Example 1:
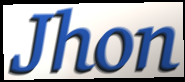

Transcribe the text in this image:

Jhon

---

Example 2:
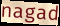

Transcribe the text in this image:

nagad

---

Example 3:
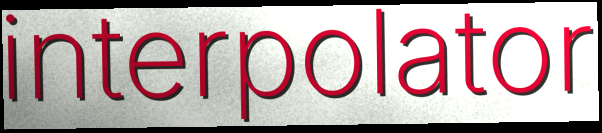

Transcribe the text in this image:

interpolator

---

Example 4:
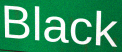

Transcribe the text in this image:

Black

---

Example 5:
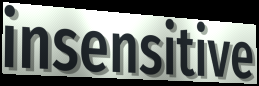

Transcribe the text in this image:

insensitive